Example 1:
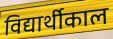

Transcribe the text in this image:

विद्यार्थीकाल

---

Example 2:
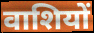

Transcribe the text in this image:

वाशियों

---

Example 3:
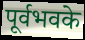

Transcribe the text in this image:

पूर्वभवके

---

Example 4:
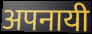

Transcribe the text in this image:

अपनायी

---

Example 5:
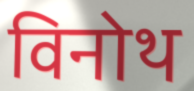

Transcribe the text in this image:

विनोथ